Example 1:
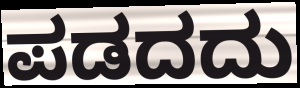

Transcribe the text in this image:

ಪಡದದು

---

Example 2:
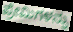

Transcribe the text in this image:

ಪ್ರೇಮಿಗಳನ್ನು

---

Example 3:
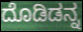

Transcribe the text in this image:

ದೊಡಿಡನ್ನ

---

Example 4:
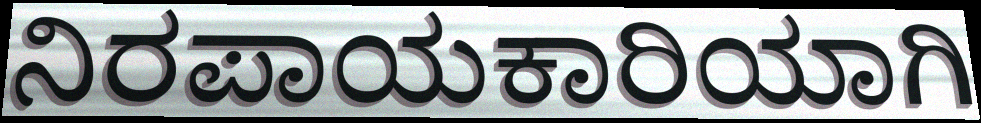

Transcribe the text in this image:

ನಿರಪಾಯಕಾರಿಯಾಗಿ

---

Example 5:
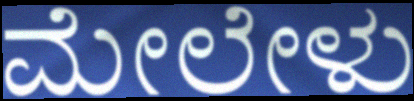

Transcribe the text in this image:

ಮೇಲೇಳು